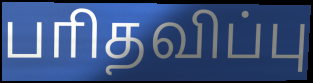
பரிதவிப்பு